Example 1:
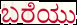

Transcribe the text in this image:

ಬರೆಯು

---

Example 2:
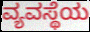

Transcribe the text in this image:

ವ್ಯವಸ್ಥೆಯ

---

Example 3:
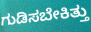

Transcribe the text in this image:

ಗುಡಿಸಬೇಕಿತ್ತು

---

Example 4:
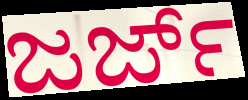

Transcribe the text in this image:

ಜರ್ಜ್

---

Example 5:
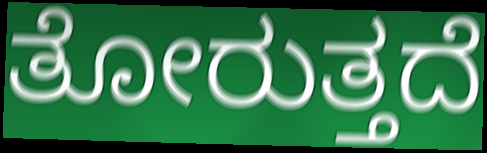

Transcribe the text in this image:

ತೋರುತ್ತದೆ